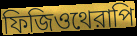
ফিজিওথেরাপি